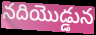
నదియొడ్డున